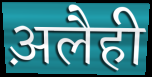
अ़लैही